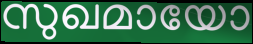
സുഖമായോ